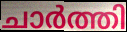
ചാർത്തി